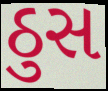
ઠુસ